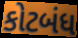
કોટબંધ